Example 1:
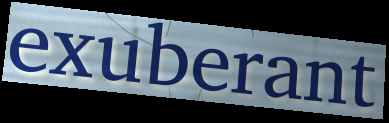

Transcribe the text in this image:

exuberant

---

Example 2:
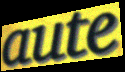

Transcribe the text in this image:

aute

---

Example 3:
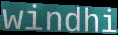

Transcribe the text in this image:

windhi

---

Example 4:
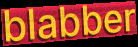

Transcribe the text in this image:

blabber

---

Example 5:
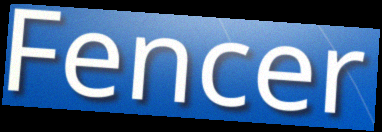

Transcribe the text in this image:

Fencer